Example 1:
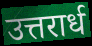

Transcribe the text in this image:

उत्तरार्ध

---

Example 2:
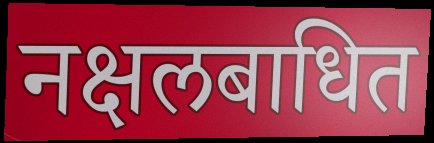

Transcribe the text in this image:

नक्षलबाधित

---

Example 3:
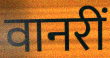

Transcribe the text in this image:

वानरीं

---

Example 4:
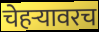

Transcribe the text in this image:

चेहर्‍यावरच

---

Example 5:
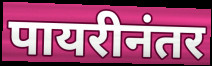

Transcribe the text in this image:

पायरीनंतर